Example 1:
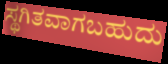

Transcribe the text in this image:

ಸ್ಥಗಿತವಾಗಬಹುದು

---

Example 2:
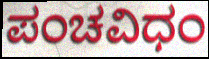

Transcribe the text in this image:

ಪಂಚವಿಧಂ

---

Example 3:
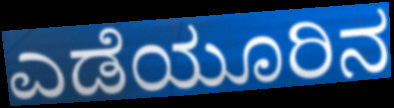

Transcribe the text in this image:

ಎಡೆಯೂರಿನ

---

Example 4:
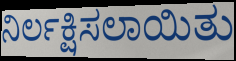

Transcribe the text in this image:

ನಿರ್ಲಕ್ಷಿಸಲಾಯಿತು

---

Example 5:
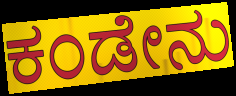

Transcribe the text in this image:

ಕಂಡೇನು